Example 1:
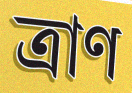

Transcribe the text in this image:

ত্ৰাণ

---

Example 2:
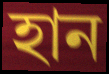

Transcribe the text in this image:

হান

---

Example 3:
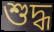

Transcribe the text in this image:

শুদ্ধ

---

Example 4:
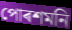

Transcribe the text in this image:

পোৰশমনি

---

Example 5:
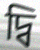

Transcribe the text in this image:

দ্বি